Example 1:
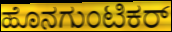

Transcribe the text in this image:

ಹೊನಗುಂಟಿಕರ್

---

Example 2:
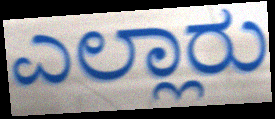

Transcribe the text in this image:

ಎಲ್ಲಾರು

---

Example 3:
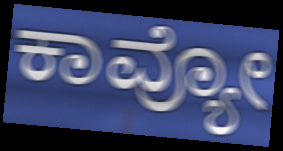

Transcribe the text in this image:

ಕಾವ್ಯೋ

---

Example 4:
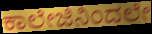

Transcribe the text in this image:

ಕಾಲೇಜಿನಿಂದಲೇ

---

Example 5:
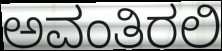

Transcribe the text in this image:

ಅವಂತಿರಲಿ